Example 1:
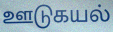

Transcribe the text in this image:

ஊடுகயல்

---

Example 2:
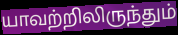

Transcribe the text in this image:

யாவற்றிலிருந்தும்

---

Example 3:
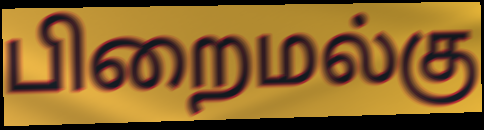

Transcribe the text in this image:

பிறைமல்கு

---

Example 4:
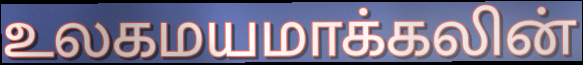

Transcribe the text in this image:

உலகமயமாக்கலின்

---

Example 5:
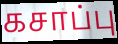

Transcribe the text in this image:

கசாப்பு